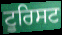
ਟੂਰਿਸਟ